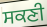
ਸਕਣੀ